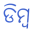
ଡିମ୍ଵ